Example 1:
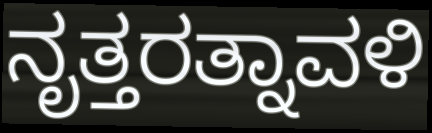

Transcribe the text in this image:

ನೃತ್ತರತ್ನಾವಳಿ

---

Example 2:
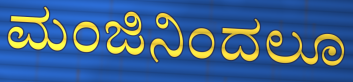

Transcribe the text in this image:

ಮಂಜಿನಿಂದಲೂ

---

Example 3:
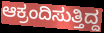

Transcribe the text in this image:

ಆಕ್ರಂದಿಸುತ್ತಿದ್ದ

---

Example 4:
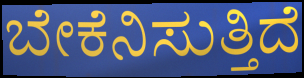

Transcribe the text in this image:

ಬೇಕೆನಿಸುತ್ತಿದೆ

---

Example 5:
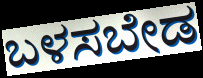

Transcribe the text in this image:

ಬಳಸಬೇಡ